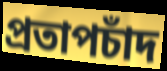
প্রতাপচাঁদ